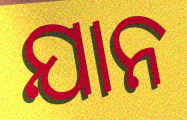
ଯାନ